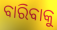
ବାରିବାକୁ